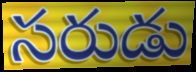
సరుడు